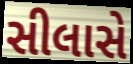
સીલાસે